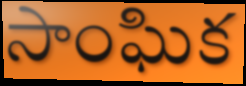
సాంఘిక